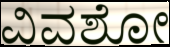
ವಿವಶೋ